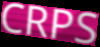
CRPS